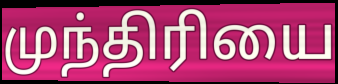
முந்திரியை